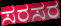
ಸರಸರ